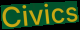
Civics